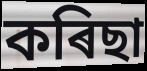
কৰিছা